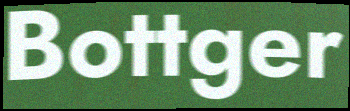
Bottger